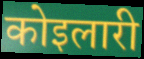
कोइलारी